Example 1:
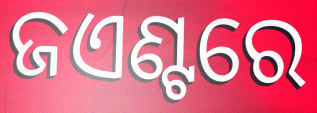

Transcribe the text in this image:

ଜଏଣ୍ଟରେ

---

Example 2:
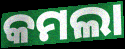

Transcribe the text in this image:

କମଲା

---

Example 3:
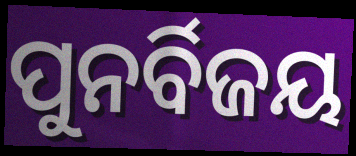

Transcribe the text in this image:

ପୁନର୍ବିଜୟ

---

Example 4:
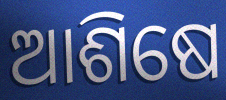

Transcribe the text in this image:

ଆଶିଷେ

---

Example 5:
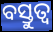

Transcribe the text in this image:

ବସ୍ତୁତ୍ୱ